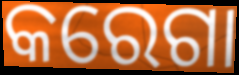
କରେଗା